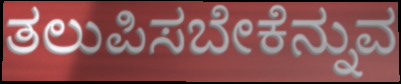
ತಲುಪಿಸಬೇಕೆನ್ನುವ